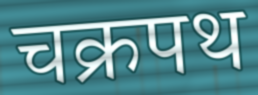
चक्रपथ